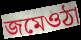
জমেওঠা